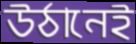
উঠানেই